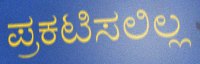
ಪ್ರಕಟಿಸಲಿಲ್ಲ